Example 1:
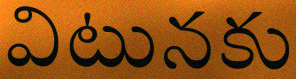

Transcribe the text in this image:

విటునకు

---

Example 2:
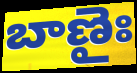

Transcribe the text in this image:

బాణైః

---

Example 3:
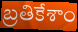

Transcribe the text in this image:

బ్రతికేశాం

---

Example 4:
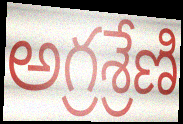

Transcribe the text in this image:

అగ్రశ్రేణి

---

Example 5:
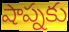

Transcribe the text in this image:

షాప్నకు